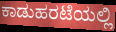
ಕಾಡುಹರಟೆಯಲ್ಲಿ